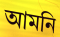
আমনি